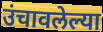
उंचावलेल्या